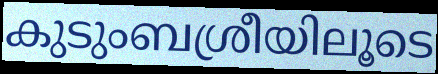
കുടുംബശ്രീയിലൂടെ